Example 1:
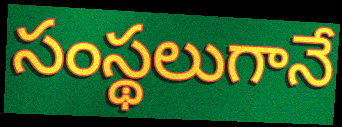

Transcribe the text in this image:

సంస్థలుగానే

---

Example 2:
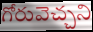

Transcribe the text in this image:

గోరువెచ్చని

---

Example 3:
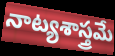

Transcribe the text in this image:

నాట్యశాస్త్రమే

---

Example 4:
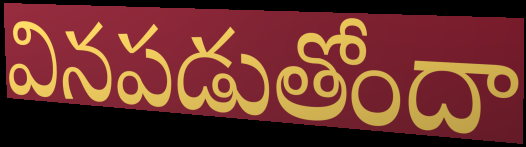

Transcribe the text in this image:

వినపడుతోందా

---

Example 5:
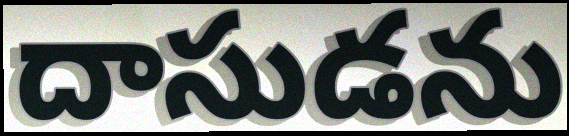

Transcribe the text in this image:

దాసుడను